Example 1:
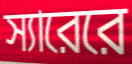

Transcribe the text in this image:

স্যারেরে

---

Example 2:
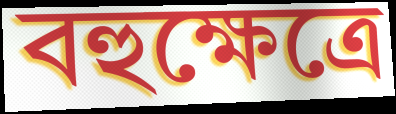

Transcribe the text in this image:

বহুক্ষেত্রে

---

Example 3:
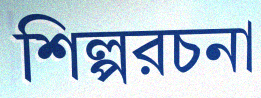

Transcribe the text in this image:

শিল্পরচনা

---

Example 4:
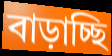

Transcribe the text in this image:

বাড়াচ্ছি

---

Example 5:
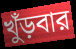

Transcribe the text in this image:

খুঁড়বার